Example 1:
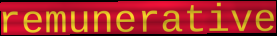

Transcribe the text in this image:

remunerative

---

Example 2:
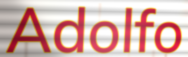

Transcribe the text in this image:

Adolfo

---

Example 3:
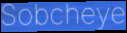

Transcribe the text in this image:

Sobcheye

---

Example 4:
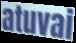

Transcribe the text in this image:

atuvai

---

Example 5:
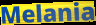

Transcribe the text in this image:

Melania